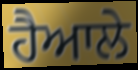
ਹੈਆਲੇ